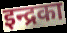
इन्द्रका